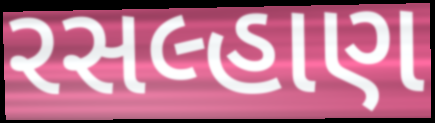
રસલ્હાણ